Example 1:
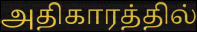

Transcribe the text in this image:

அதிகாரத்தில்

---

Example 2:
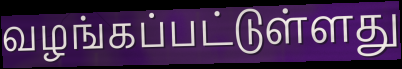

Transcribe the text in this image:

வழங்கப்பட்டுள்ளது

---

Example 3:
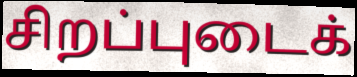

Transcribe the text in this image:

சிறப்புடைக்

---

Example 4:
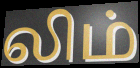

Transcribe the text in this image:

லிம்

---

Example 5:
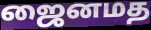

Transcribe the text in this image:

ஜைனமத